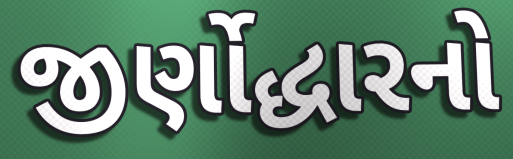
જીર્ણોદ્ધારનો